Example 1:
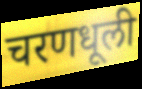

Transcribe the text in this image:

चरणधूली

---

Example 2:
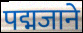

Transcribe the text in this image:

पद्मजाने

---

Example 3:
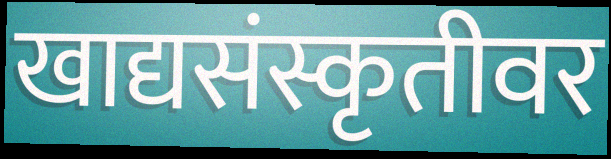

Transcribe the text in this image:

खाद्यसंस्कृतीवर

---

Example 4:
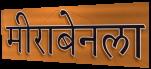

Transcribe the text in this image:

मीराबेनला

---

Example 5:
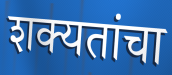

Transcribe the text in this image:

शक्यतांचा